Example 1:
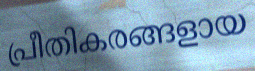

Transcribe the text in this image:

പ്രീതികരങ്ങളായ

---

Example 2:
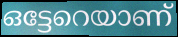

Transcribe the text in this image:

ഒട്ടേറെയാണ്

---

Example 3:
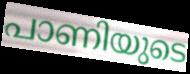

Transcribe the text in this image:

പാണിയുടെ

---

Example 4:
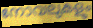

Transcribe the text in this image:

നോവലുകളും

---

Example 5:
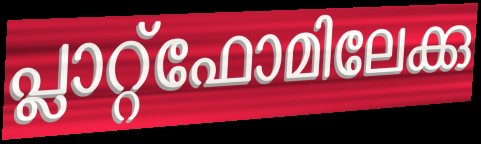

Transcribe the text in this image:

പ്ലാറ്റ്ഫോമിലേക്കു